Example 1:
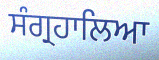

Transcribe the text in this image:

ਸੰਗ੍ਰਹਾਲਿਆ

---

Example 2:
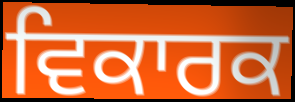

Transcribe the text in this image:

ਵਿਕਾਰਕ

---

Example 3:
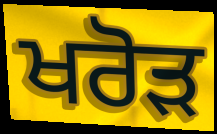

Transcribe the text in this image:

ਖਰੋੜ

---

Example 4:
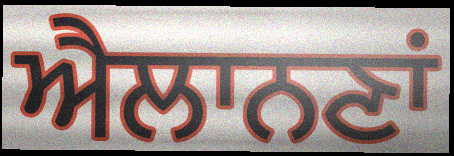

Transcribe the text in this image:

ਐਲਾਨਣਾਂ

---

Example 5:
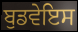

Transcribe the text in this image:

ਬੁਡਵੇਇਸ